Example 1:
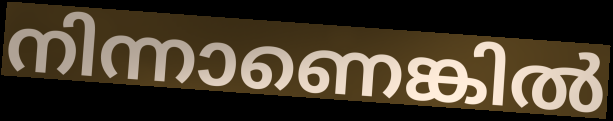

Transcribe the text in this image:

നിന്നാണെങ്കിൽ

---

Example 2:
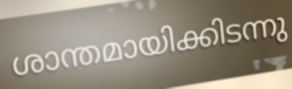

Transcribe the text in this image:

ശാന്തമായിക്കിടന്നു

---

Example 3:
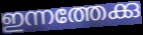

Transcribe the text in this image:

ഇന്നത്തേക്കു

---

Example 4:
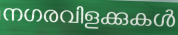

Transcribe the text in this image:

നഗരവിളക്കുകൾ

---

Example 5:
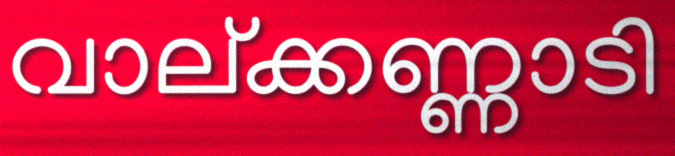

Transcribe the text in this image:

വാല്ക്കണ്ണാടി